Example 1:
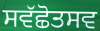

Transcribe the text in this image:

ਸਵੱਛੋਤਸਵ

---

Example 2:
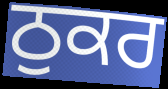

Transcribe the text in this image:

ਠੁਕਰ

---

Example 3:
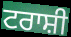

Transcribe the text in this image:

ਟਰਾਸ਼ੀ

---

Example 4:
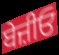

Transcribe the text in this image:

ਬੇਜ਼ੀਓ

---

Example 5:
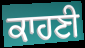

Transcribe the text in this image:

ਕਾਹਣੀ